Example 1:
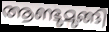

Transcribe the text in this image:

ആണ്ടുമുങ്ങി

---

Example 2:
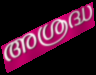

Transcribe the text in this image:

അശ്രദ്ധ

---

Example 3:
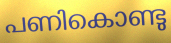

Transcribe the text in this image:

പണികൊണ്ടു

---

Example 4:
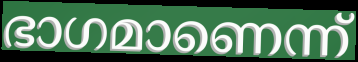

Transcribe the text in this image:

ഭാഗമാണെന്ന്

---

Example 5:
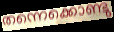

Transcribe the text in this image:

തന്നെക്കൊണ്ടു